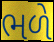
ભળે